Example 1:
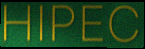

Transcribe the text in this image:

HIPEC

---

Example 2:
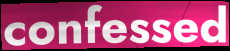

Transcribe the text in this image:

confessed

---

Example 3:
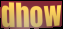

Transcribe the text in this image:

dhow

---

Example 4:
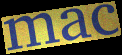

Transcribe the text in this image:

mac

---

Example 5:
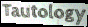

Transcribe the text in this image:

Tautology